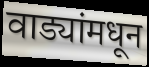
वाड्यांमधून